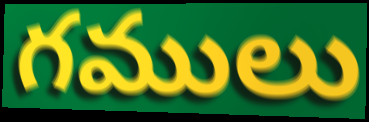
గములు